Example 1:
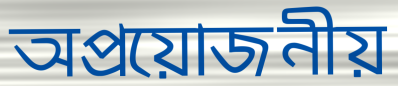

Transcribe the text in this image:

অপ্রয়োজনীয়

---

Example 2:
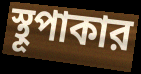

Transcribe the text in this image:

স্থূপাকার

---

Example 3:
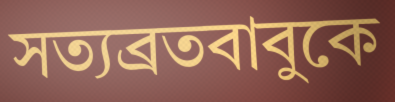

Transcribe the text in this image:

সত্যব্রতবাবুকে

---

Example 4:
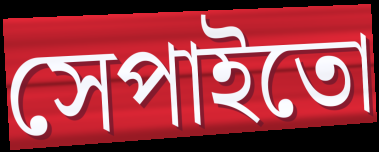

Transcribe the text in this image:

সেপাইতো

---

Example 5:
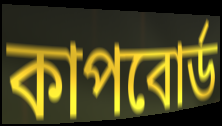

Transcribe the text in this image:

কাপবোর্ড